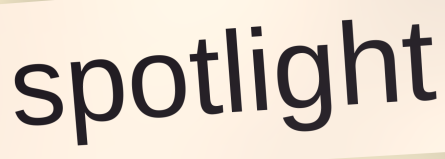
spotlight